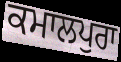
ਕਮਾਲਪੁਰਾ